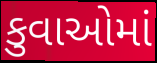
કુવાઓમાં